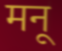
मनू